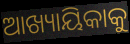
ଆଖ୍ୟାୟିକାକୁ